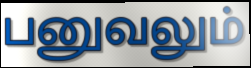
பனுவலும்